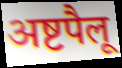
अष्टपैलू